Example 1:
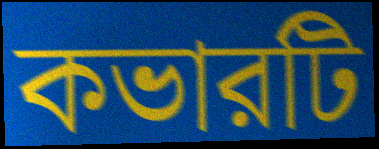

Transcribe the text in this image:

কভারটি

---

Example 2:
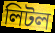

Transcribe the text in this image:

লিটল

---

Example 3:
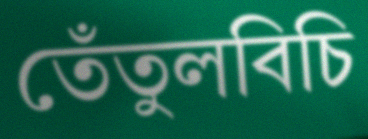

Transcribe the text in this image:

তেঁতুলবিচি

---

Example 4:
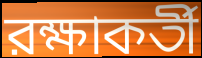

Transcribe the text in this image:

রক্ষাকর্তী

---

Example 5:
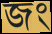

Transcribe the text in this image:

জং